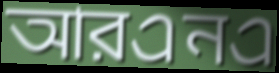
আরএনএ